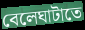
বেলেঘাটাতে